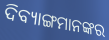
ଦିବ୍ୟାଙ୍ଗମାନଙ୍କର